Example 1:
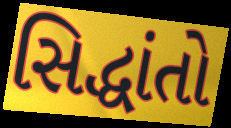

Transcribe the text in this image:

સિદ્ધાંતો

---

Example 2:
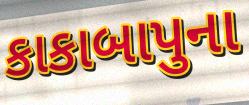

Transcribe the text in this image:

કાકાબાપુના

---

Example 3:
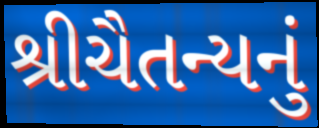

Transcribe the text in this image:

શ્રીચૈતન્યનું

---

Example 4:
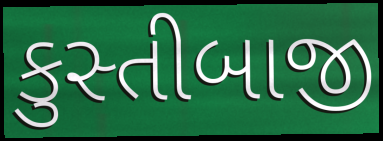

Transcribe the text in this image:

કુસ્તીબાજી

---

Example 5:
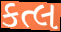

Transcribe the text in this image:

કત્લ